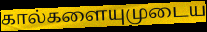
கால்களையுமுடைய